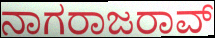
ನಾಗರಾಜರಾವ್